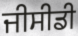
ਜੀਸੀਡੀ